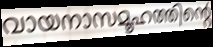
വായനാസമൂഹത്തിന്റെ